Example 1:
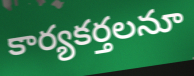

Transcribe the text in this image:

కార్యకర్తలనూ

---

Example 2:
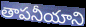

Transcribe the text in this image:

తాపనీయాని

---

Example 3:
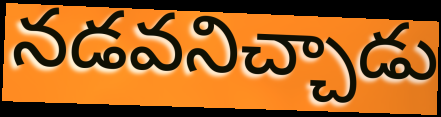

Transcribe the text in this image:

నడవనిచ్చాడు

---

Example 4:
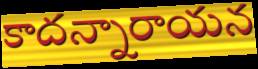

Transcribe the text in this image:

కాదన్నారాయన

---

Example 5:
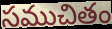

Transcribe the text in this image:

సముచితం